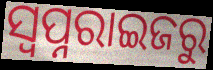
ସ୍ୱପ୍ନରାଇଜରୁ